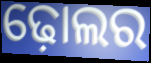
ଢ଼ୋଲର